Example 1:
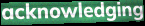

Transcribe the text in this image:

acknowledging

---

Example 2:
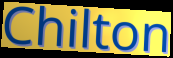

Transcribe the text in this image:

Chilton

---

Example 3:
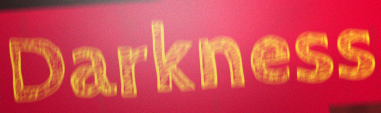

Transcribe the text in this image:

Darkness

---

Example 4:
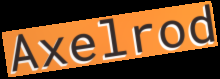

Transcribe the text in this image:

Axelrod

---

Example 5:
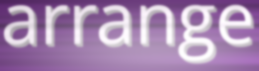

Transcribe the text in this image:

arrange